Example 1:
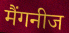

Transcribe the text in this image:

मैंगनीज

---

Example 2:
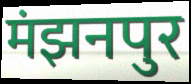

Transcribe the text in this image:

मंझनपुर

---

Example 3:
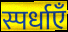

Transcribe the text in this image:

स्पर्धाएँ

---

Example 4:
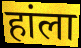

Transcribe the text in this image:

हांला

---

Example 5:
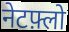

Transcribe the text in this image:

नेटफ़्लो